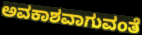
ಅವಕಾಶವಾಗುವಂತೆ